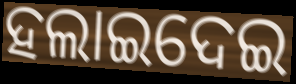
ହଲାଇଦେଇ